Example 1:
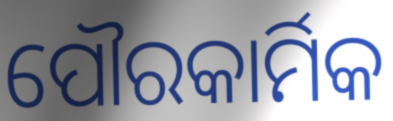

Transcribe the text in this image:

ପୌରକାର୍ମିକ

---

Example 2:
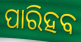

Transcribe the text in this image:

ପାରିହବ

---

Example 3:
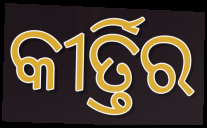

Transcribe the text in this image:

କୀର୍ତ୍ତିର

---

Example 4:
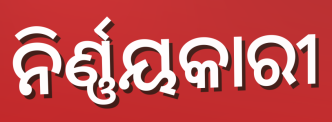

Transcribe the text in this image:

ନିର୍ଣ୍ଣୟକାରୀ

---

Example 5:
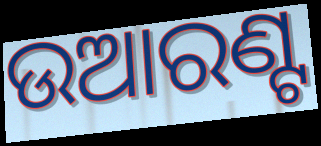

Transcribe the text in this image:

ଉଆରଣ୍ଟ